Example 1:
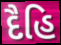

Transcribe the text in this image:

દૈહિ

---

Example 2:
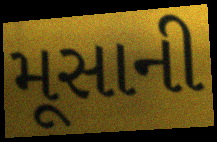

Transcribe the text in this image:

મૂસાની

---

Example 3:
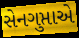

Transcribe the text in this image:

સેનગુપ્તાએ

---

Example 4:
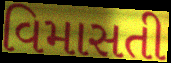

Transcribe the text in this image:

વિમાસતી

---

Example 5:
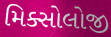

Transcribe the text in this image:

મિક્સોલોજી